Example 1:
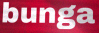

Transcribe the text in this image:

bunga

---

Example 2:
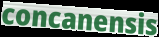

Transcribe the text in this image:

concanensis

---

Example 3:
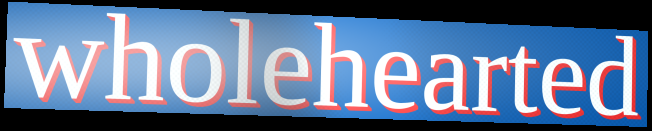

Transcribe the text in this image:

wholehearted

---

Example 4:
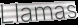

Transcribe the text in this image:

Llamas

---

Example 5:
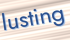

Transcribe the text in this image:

lusting